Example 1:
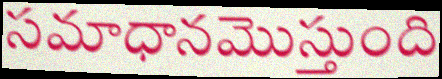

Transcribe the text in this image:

సమాధానమొస్తుంది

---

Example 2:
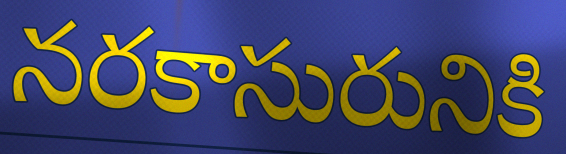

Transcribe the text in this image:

నరకాసురునికి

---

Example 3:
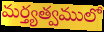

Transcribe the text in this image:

మర్త్యత్వములో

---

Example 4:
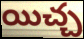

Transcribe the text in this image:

యిచ్చ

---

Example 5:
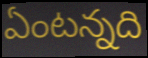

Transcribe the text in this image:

ఏంటన్నది